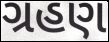
ગ્રહણ